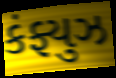
કંફ્યુઝ